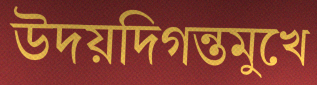
উদয়দিগন্তমুখে